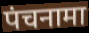
पंचनामा